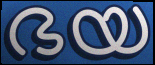
ഭയ